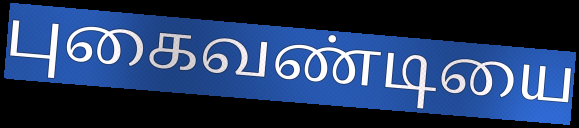
புகைவண்டியை